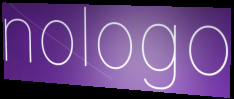
nologo